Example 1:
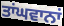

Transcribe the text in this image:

ਤਾਂਘਵਾਨਾਂ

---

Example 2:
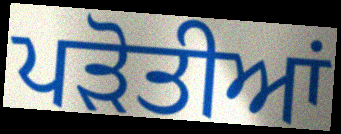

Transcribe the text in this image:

ਪੜੋਤੀਆਂ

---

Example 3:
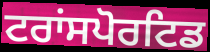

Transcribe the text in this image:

ਟਰਾਂਸਪੋਰਟਿਡ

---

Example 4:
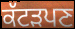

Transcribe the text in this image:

ਕੱਟੜਪਣ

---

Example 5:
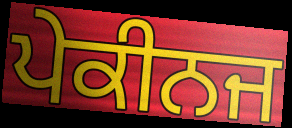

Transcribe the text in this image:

ਪੇਕੀਨਜ